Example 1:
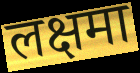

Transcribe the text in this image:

लक्षमा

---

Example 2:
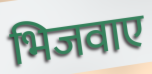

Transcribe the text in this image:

भिजवाए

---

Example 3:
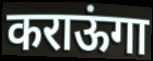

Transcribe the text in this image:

कराऊंगा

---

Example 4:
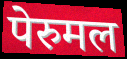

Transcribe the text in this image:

पेरुमल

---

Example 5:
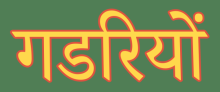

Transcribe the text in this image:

गडरियों